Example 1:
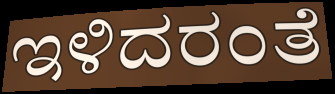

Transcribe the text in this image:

ಇಳಿದರಂತೆ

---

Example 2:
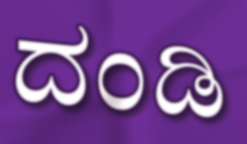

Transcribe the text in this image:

ದಂಡಿ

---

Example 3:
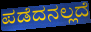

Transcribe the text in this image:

ಪಡೆದನಲ್ಲದೆ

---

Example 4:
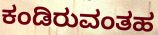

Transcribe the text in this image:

ಕಂಡಿರುವಂತಹ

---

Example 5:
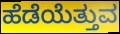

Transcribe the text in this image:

ಹೆಡೆಯೆತ್ತುವ